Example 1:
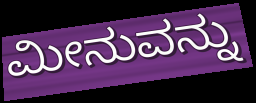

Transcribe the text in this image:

ಮೀನುವನ್ನು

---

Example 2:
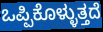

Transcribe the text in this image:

ಒಪ್ಪಿಕೊಳ್ಳುತ್ತದೆ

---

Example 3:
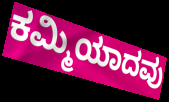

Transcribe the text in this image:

ಕಮ್ಮಿಯಾದವು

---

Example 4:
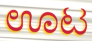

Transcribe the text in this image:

ಊಟ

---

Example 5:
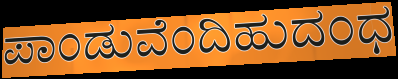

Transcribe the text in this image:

ಪಾಂಡುವೆಂದಿಹುದಂಧ